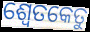
ଶ୍ୱେତକେତୁ